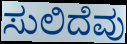
ಸುಲಿದೆವು